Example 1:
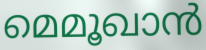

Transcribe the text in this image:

മെമൂഖാൻ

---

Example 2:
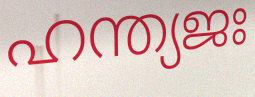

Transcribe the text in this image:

ഹന്ത്യജഃ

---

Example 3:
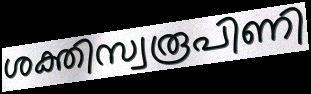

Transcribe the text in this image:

ശക്തിസ്വരൂപിണി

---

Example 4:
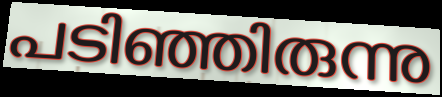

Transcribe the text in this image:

പടിഞ്ഞിരുന്നു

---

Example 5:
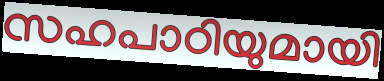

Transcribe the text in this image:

സഹപാഠിയുമായി